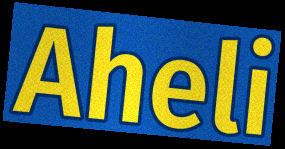
Aheli